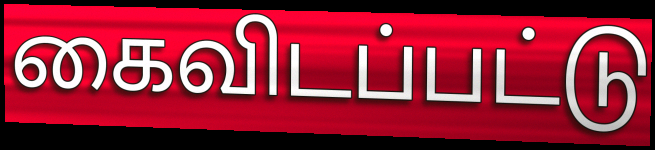
கைவிடப்பட்டு